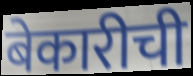
बेकारीची